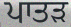
ਪਾਤੜ